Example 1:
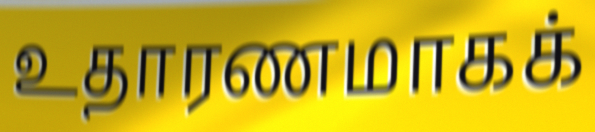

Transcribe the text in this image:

உதாரணமாகக்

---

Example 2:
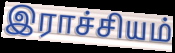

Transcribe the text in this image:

இராச்சியம்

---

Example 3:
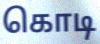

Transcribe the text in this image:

கொடி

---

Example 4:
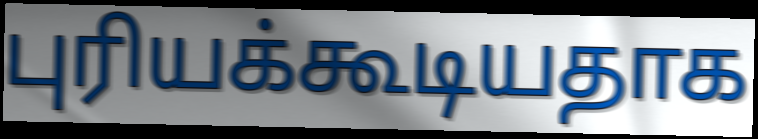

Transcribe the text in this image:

புரியக்கூடியதாக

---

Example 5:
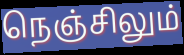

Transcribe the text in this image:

நெஞ்சிலும்